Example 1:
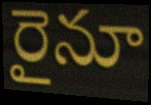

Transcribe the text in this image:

రైనూ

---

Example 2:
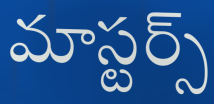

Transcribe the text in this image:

మాస్టర్స్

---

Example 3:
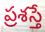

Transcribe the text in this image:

ప్రశస్తే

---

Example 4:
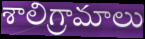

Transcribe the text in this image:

శాలిగ్రామాలు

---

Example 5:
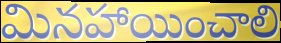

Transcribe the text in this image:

మినహాయించాలి